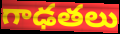
గాఢతలు